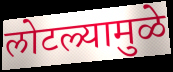
लोटल्यामुळे